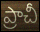
ప్రాచీ